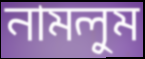
নামলুম